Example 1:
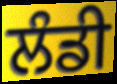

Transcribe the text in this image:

ਲੰਡੀ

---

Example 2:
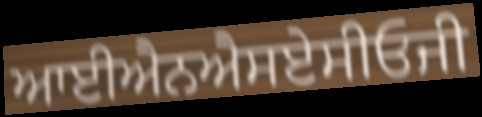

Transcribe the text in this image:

ਆਈਐਨਐਸਏਸੀਓਜੀ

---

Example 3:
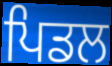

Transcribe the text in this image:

ਪਿਡਲ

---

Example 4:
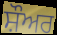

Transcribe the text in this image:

ਸ਼ੌਅਰ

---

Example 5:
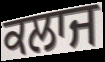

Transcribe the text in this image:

ਕਲਾਜ